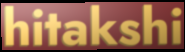
hitakshi